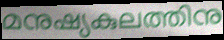
മനുഷ്യകുലത്തിനു